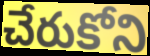
చేరుకోని